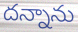
దన్నాను